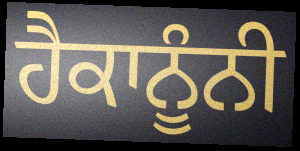
ਹੈਕਾਨੂੰਨੀ